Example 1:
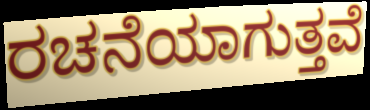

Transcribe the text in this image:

ರಚನೆಯಾಗುತ್ತವೆ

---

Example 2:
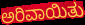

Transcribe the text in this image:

ಅರಿವಾಯಿತು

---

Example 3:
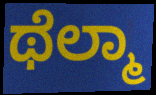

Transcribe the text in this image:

ಥೆಲ್ಮಾ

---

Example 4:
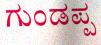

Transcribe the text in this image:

ಗುಂಡಪ್ಪ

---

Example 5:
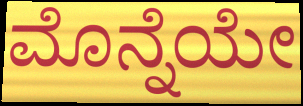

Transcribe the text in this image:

ಮೊನ್ನೆಯೇ